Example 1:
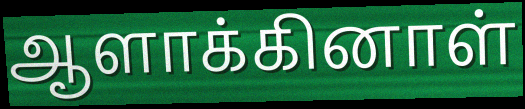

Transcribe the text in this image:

ஆளாக்கினாள்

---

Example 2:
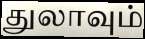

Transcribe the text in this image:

துலாவும்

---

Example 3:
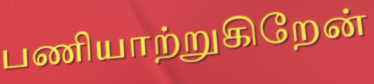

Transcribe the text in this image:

பணியாற்றுகிறேன்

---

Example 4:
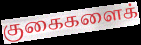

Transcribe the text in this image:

குகைகளைக்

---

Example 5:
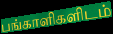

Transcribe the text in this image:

பங்காளிகளிடம்